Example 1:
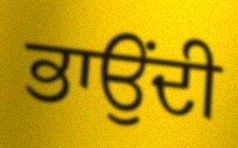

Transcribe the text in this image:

ਭਾਉਂਦੀ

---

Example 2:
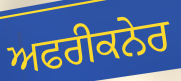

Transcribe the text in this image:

ਅਫਰੀਕਨੇਰ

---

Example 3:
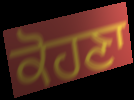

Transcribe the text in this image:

ਕੋਹਣਾ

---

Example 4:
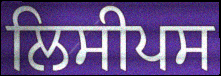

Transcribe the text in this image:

ਲਿਸੀਪਸ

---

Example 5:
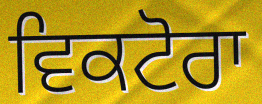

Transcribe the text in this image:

ਵਿਕਟੋਰਾ